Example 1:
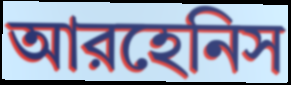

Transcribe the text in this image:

আরহেনিস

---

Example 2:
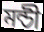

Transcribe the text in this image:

মন্ডী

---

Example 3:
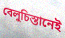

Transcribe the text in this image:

বেলুচিস্তানেই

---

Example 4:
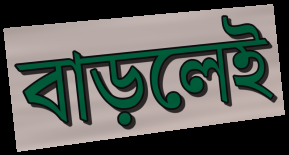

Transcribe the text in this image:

বাড়লেই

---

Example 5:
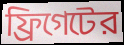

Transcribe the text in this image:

ফ্রিগেটের